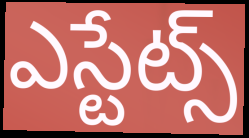
ఎస్టేట్స్